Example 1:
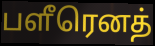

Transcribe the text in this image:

பளீரெனத்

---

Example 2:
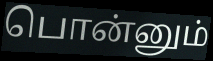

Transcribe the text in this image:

பொன்னும்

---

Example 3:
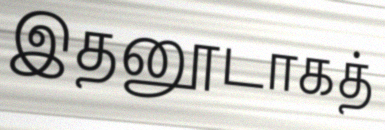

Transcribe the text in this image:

இதனூடாகத்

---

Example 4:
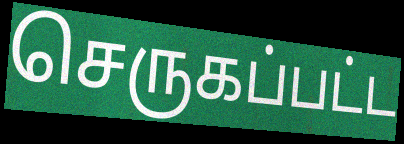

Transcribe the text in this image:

செருகப்பட்ட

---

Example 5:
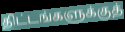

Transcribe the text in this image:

திட்டங்களுக்குத்